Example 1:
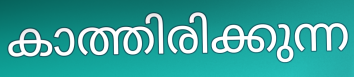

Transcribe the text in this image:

കാത്തിരിക്കുന്ന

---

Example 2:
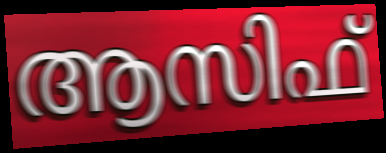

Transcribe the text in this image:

ആസിഫ്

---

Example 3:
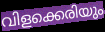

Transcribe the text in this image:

വിളക്കെരിയും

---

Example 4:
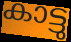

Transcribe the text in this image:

കാട്ടു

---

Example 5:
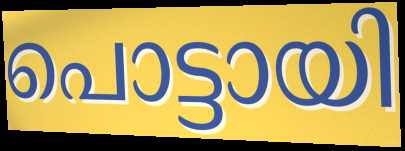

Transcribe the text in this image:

പൊട്ടായി